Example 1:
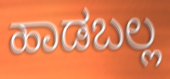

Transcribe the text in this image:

ಹಾಡಬಲ್ಲ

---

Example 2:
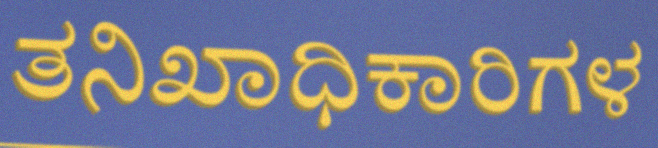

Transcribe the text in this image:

ತನಿಖಾಧಿಕಾರಿಗಳ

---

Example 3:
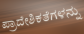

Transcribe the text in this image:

ಪ್ರಾದೇಶಿಕತೆಗಳನ್ನು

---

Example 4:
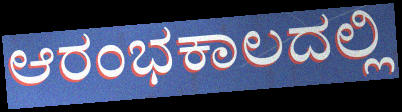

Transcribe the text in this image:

ಆರಂಭಕಾಲದಲ್ಲಿ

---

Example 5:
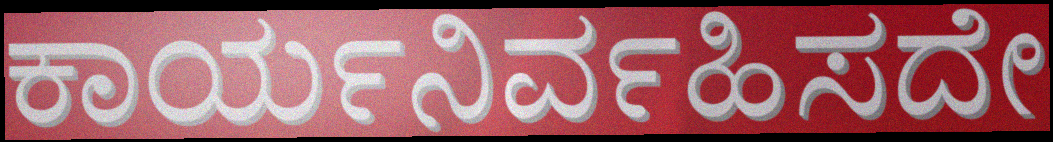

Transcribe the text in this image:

ಕಾರ್ಯನಿರ್ವಹಿಸದೇ